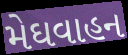
મેઘવાહન